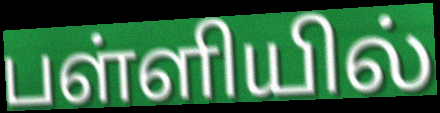
பள்ளியில்